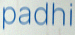
padhi